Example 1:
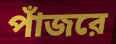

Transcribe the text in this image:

পাঁজরে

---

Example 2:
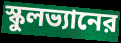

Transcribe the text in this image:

স্কুলভ্যানের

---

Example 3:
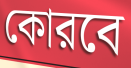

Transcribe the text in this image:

কোরবে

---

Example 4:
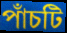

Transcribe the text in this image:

পাঁচটি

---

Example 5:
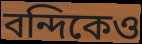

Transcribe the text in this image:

বন্দিকেও